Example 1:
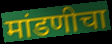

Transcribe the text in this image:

मांडणीचा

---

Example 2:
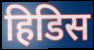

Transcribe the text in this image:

हिडिस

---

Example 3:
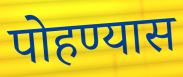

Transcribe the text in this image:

पोहण्यास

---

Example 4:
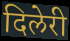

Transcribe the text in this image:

दिलेरी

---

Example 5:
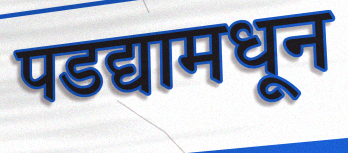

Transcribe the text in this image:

पडद्यामधून